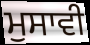
ਮੁਸਾਵੀ